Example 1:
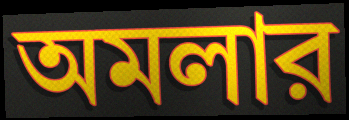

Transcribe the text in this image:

অমলার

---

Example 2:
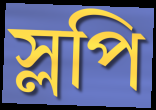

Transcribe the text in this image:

স্লপি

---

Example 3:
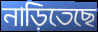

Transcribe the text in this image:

নাড়িতেছে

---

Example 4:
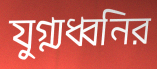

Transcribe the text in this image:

যুগ্মধ্বনির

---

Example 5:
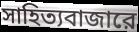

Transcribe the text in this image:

সাহিত্যবাজারে